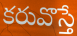
కరువొస్తే